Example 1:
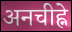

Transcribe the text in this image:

अनचीह्ने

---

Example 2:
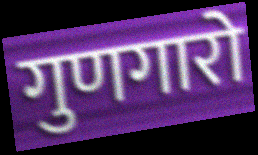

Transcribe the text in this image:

गुणगारो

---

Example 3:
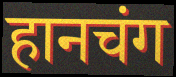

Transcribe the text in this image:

हानचंग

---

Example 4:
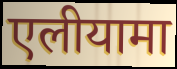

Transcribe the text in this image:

एलीयामा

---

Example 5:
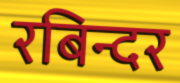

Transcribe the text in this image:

रबिन्दर